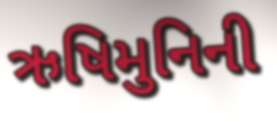
ઋષિમુનિની